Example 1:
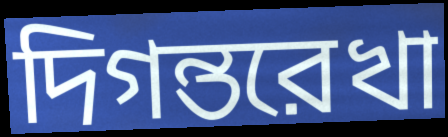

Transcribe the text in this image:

দিগন্তরেখা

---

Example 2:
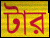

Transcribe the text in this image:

টার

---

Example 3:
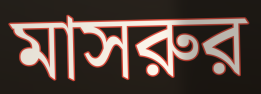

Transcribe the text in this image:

মাসরুর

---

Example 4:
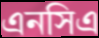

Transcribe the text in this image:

এনসিএ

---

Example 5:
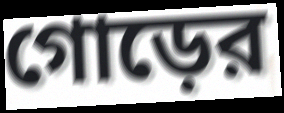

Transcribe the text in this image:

গোড়ের